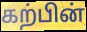
கற்பின்